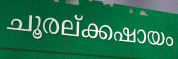
ചൂരല്ക്കഷായം